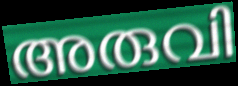
അരുവി